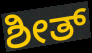
ಶೀತ್